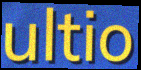
ultio